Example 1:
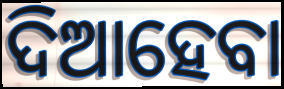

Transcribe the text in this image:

ଦିଆହେବା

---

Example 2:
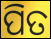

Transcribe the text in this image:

ପିତ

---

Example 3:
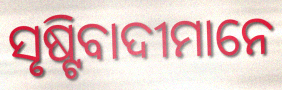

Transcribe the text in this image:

ସୃଷ୍ଟିବାଦୀମାନେ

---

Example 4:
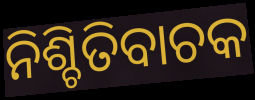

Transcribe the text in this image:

ନିଶ୍ଚିତିବାଚକ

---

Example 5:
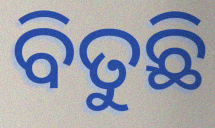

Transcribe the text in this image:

ବିତୁଛି